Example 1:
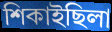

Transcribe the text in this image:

শিকাইছিলা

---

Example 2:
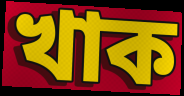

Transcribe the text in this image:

খাক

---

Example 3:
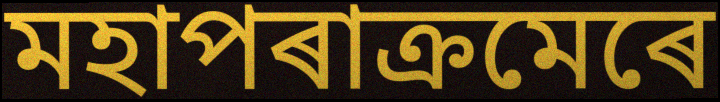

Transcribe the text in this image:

মহাপৰাক্ৰমেৰে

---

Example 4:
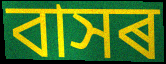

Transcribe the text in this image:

বাসৰ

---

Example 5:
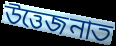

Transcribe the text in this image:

উত্তেজনাত